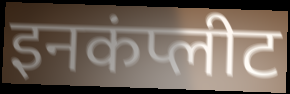
इनकंप्लीट